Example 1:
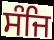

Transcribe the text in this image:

ਸੰਜਿ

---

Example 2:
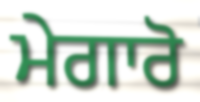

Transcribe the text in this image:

ਮੇਗਾਰੋ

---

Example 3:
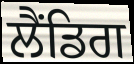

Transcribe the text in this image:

ਲੈਂਡਿਗ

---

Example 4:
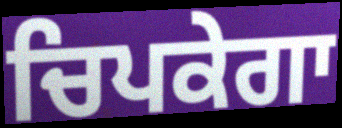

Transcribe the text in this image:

ਚਿਪਕੇਗਾ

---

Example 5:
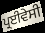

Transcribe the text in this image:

ਪ੍ਰਈਵੇਸੀ